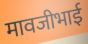
मावजीभाई